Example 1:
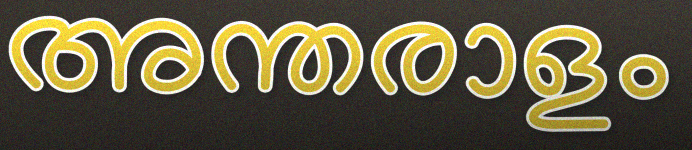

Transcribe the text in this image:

അന്തരാളം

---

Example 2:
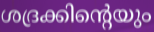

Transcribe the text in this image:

ശദ്രക്കിന്റെയും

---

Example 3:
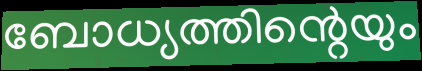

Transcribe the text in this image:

ബോധ്യത്തിന്റെയും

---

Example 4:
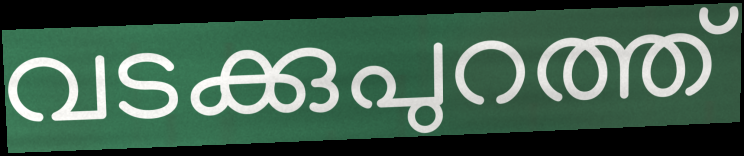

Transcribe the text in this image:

വടക്കുപുറത്ത്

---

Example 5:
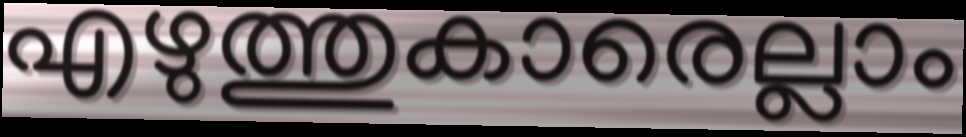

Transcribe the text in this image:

എഴുത്തുകാരെല്ലാം